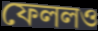
ফেললও